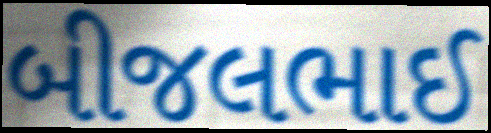
બીજલભાઈ